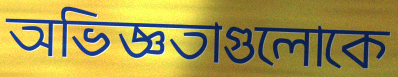
অভিজ্ঞতাগুলোকে